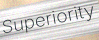
Superiority